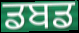
ਡਬਡ